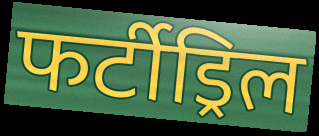
फर्टीड्रिल